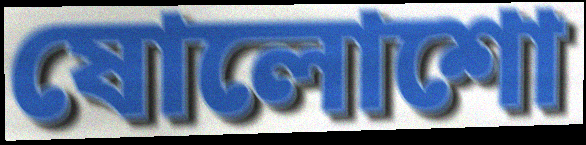
ষোলোশো